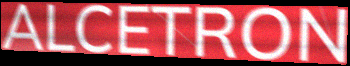
ALCETRON